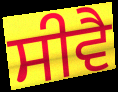
ਸੀਵੈ